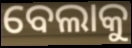
ବେଲାକୁ